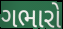
ગભારો